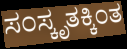
ಸಂಸ್ಕೃತಕ್ಕಿಂತ